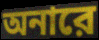
অনারে